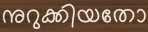
നുറുക്കിയതോ